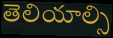
తెలియాల్సి